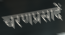
चरणप्रसादें